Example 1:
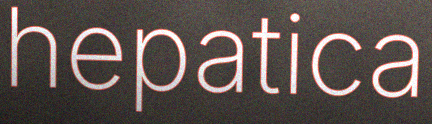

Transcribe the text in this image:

hepatica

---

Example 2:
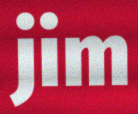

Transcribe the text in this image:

jim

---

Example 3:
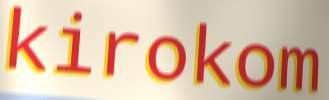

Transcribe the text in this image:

kirokom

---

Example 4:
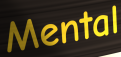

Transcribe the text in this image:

Mental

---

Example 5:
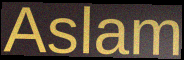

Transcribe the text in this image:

Aslam